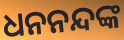
ଧନନନ୍ଦଙ୍କ